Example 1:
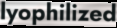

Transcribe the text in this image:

lyophilized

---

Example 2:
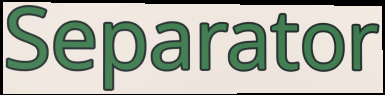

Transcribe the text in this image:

Separator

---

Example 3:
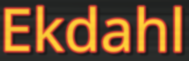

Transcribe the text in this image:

Ekdahl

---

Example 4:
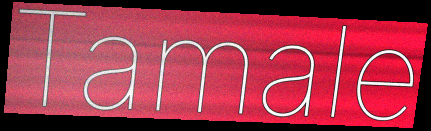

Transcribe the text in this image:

Tamale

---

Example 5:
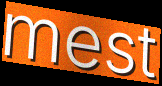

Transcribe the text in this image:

mest